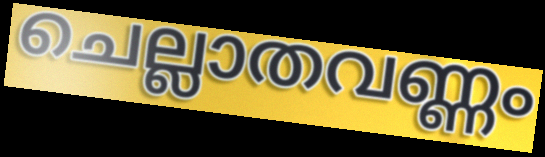
ചെല്ലാതവണ്ണം